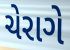
ચેરાગે